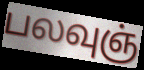
பலவுஞ்